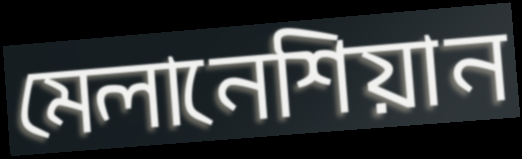
মেলানেশিয়ান